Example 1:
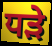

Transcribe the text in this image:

ਧੜੇ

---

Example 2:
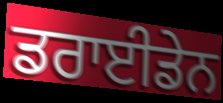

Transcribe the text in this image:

ਡਰਾਈਡੇਨ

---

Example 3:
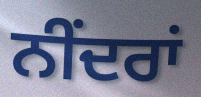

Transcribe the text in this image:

ਨੀਂਦਰਾਂ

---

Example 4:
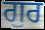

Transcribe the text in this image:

ਗੁਰ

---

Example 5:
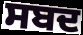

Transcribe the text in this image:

ਸਬਦ